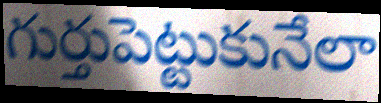
గుర్తుపెట్టుకునేలా